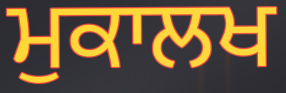
ਮੁਕਾਲਖ